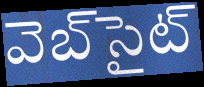
వెబ్‌సైట్